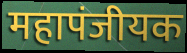
महापंजीयक